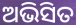
ଅଭିସିତ